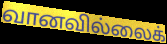
வானவில்லைக்